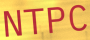
NTPC